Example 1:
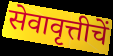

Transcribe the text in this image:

सेवावृत्तीचें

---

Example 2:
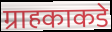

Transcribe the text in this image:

ग्राहकाकडे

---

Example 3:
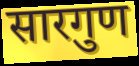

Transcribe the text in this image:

सारगुण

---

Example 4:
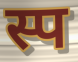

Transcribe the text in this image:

स्प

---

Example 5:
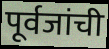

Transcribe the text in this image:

पूर्वजांची